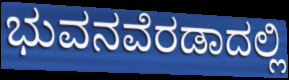
ಭುವನವೆರಡಾದಲ್ಲಿ